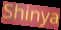
Shinya